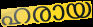
ഹരായ